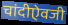
चांदीऐवजी